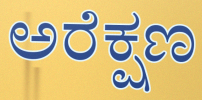
ಅರೆಕ್ಷಣ